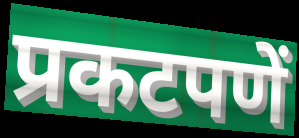
प्रकटपणें